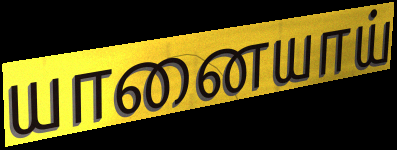
யானையாய்